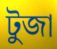
টুজা